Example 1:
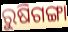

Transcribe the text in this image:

ରୁଷିଗଙ୍ଗା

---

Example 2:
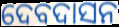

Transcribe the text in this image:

ଦେବଦାସନ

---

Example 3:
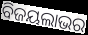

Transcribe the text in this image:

ବିଜୟଲାଭର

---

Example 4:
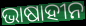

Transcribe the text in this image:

ଭାଷାହୀନ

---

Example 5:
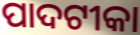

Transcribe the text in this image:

ପାଦଟୀକା